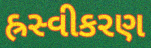
હ્રસ્વીકરણ